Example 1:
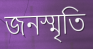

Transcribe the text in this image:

জনস্মৃতি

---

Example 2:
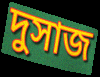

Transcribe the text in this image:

দুসাজ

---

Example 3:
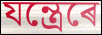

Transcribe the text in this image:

যন্ত্ৰেৰে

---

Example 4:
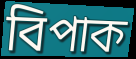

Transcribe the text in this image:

বিপাক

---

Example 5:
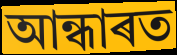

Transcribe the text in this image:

আন্ধাৰত